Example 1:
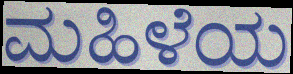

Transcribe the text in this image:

ಮಹಿಳೆಯ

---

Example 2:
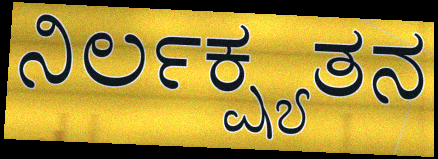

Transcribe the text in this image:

ನಿರ್ಲಕ್ಷ್ಯತನ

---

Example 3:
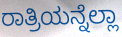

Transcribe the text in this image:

ರಾತ್ರಿಯನ್ನೆಲ್ಲಾ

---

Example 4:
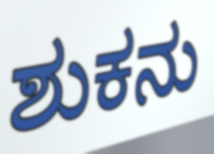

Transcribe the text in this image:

ಶುಕನು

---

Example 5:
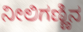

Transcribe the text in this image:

ನೀಲಿಗಣ್ಣಿನ